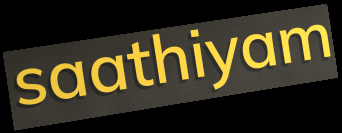
saathiyam